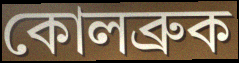
কোলব্রুক